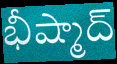
భీష్మాద్